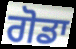
ਗੋਡਾ